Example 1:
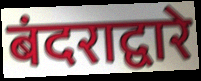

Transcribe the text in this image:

बंदराद्वारे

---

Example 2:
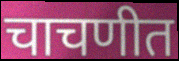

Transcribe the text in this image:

चाचणीत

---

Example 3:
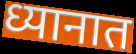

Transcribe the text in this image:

ध्यानात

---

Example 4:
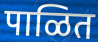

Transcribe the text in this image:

पाळित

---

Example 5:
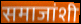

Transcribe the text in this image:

समाजांशी